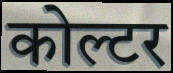
कोल्टर